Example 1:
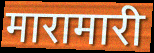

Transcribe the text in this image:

मारामारी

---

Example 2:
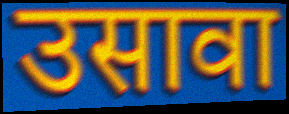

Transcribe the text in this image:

उसावा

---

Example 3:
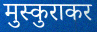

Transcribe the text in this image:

मुस्कुराकर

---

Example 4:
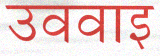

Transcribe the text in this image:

उववाइ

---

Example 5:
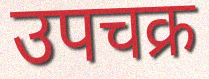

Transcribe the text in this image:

उपचक्र